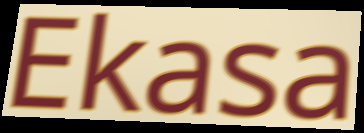
Ekasa